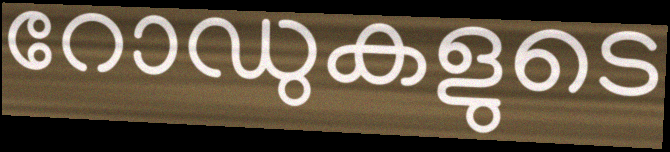
റോഡുകളുടെ